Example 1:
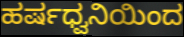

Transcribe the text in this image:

ಹರ್ಷಧ್ವನಿಯಿಂದ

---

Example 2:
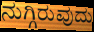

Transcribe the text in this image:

ನುಗ್ಗಿರುವುದು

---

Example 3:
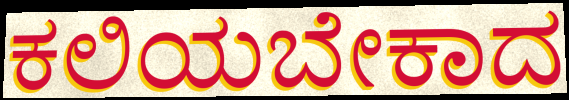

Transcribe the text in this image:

ಕಲಿಯಬೇಕಾದ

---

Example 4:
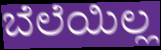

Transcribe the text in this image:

ಬೆಲೆಯಿಲ್ಲ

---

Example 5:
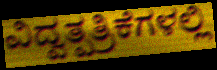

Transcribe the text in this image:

ವಿದ್ವತ್ಪತ್ರಿಕೆಗಳಲ್ಲಿ